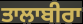
ਤਾਲਾਬੀਰਾ